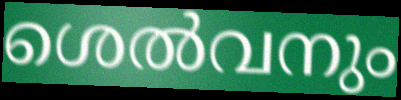
ശെൽവനും